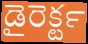
డైరెక్టర్‍